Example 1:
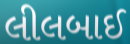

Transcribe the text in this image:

લીલબાઈ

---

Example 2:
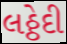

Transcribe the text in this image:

લઠ્ઠેદી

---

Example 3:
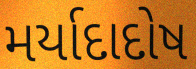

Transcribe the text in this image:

મર્યાદાદોષ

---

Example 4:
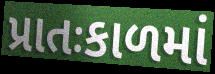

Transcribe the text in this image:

પ્રાતઃકાળમાં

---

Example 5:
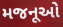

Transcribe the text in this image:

મજનૂઓ